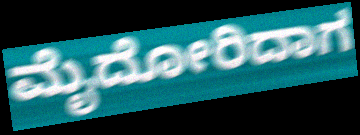
ಮೈದೋರಿದಾಗ